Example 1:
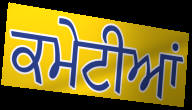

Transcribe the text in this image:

ਕਮੇਟੀਆਂ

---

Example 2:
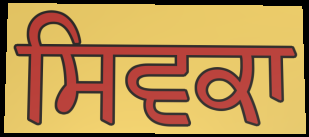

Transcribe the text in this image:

ਸਿਵਕਾ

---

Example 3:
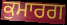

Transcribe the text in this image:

ਕੁਮਾਰਗ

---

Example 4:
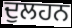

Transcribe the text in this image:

ਦੁਲਹਨ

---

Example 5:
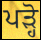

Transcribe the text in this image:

ਪੜ੍ਹੋ